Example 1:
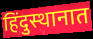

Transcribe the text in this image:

हिंदुस्थानात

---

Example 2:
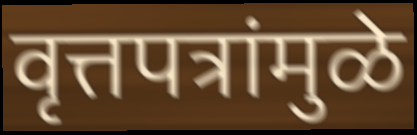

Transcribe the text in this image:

वृत्तपत्रांमुळे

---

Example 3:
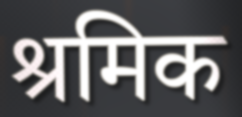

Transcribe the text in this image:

श्रमिक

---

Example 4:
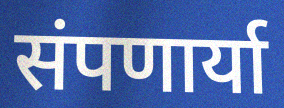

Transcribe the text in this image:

संपणार्या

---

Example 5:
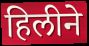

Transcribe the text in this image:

हिलीने